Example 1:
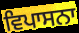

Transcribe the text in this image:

ਵਿਪਾਸਨਾ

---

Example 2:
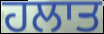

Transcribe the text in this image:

ਹਲਾਤ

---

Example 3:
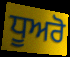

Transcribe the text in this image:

ਧੂਅਰੋ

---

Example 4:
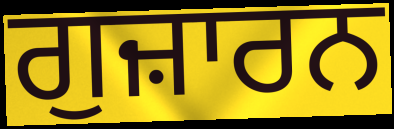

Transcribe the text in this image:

ਗੁਜ਼ਾਰਨ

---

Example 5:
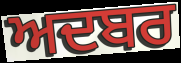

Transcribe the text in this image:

ਅਦਬਰ